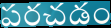
పరచడం